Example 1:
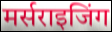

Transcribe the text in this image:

मर्सराइजिंग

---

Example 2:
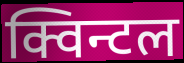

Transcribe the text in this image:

क्विन्टल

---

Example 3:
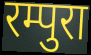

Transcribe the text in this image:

रम्पुरा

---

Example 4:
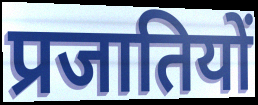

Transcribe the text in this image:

प्रजातियों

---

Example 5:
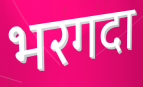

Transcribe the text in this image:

भरगदा